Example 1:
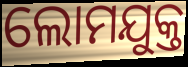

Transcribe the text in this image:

ଲୋମଯୁକ୍ତ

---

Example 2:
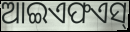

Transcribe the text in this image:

ଆଇଏଫଏସ୍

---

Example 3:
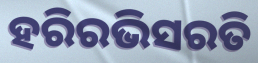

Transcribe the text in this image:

ହରିରଭିସରତି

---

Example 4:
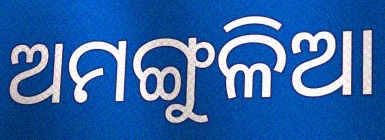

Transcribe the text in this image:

ଅମଙ୍ଗୁଳିଆ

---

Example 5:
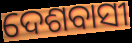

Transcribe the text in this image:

ଦେଶବାସୀ